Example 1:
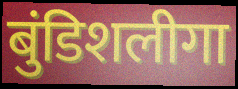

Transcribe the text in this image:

बुंडिशलीगा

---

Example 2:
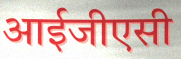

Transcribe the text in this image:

आईजीएसी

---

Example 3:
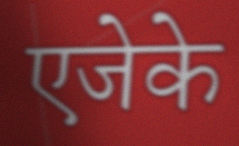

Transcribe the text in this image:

एजेके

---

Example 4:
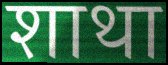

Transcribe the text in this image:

शाथा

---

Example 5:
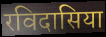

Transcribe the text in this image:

रविदासिया